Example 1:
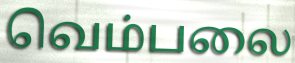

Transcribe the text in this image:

வெம்பலை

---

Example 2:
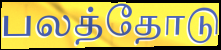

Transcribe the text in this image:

பலத்தோடு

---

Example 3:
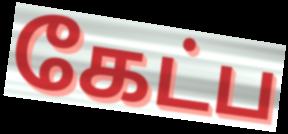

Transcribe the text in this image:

கேட்ப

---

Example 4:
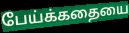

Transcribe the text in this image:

பேய்க்கதையை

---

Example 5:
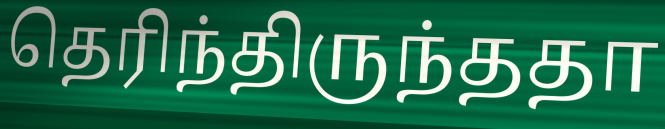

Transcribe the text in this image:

தெரிந்திருந்ததா